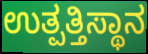
ಉತ್ಪತ್ತಿಸ್ಥಾನ